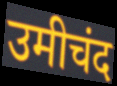
उमीचंद